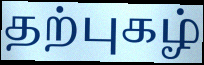
தற்புகழ்